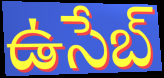
ఉసేబ్